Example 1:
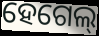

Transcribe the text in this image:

ହେଗେଲ୍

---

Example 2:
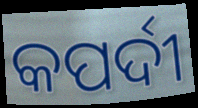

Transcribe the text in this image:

କପର୍ଦୀ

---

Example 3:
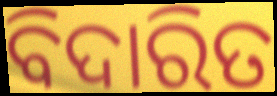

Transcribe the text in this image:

ବିଦାରିତ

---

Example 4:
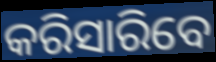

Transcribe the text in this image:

କରିସାରିବେ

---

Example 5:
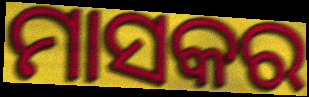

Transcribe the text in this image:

ମାସକର